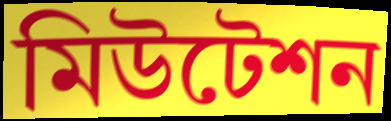
মিউটেশন